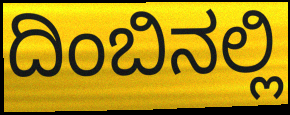
ದಿಂಬಿನಲ್ಲಿ